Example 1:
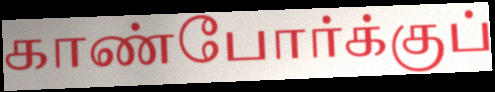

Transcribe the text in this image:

காண்போர்க்குப்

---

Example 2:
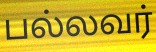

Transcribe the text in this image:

பல்லவர்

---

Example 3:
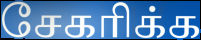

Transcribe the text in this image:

சேகரிக்க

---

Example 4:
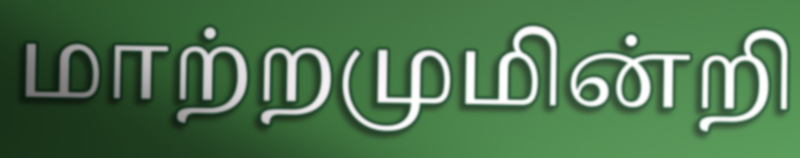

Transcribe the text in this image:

மாற்றமுமின்றி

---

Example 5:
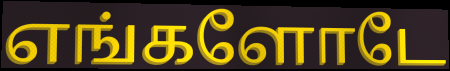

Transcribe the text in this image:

எங்களோடே